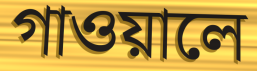
গাওয়ালে